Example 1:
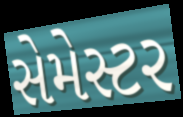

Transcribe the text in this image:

સેમેસ્ટર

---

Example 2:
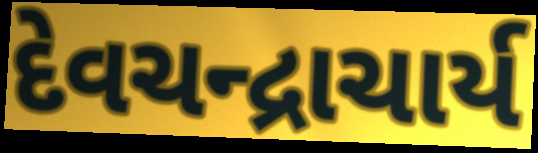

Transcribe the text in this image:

દેવચન્દ્રાચાર્ય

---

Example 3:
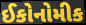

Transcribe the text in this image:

ઈકોનોમીક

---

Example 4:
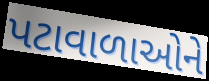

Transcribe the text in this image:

પટાવાળાઓને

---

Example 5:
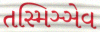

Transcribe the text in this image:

તસ્મિઞ્ઞેવ